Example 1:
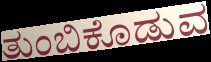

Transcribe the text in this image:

ತುಂಬಿಕೊಡುವ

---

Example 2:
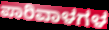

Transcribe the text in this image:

ಪಾರಿವಾಳಗಳ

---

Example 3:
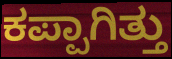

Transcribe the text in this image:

ಕಪ್ಪಾಗಿತ್ತು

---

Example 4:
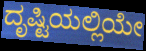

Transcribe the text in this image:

ದೃಷ್ಟಿಯಲ್ಲಿಯೇ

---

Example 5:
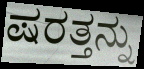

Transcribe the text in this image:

ಷರತ್ತನ್ನು